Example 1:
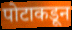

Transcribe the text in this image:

पोटाकडून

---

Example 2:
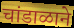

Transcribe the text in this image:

चांडाळाने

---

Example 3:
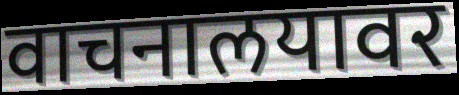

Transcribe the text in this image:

वाचनालयावर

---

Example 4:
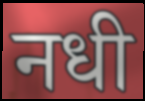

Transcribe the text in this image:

नधी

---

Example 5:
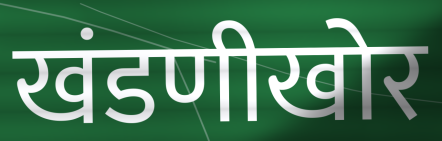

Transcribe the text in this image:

खंडणीखोर